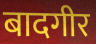
बादगीर